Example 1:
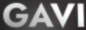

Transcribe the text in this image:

GAVI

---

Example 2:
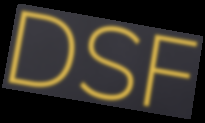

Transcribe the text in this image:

DSF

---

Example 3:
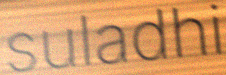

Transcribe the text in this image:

suladhi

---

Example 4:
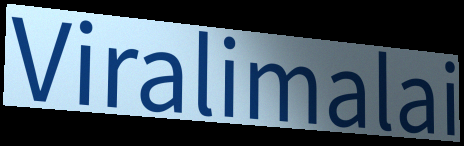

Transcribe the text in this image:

Viralimalai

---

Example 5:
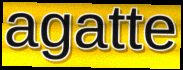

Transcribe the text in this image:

agatte